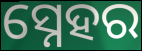
ସ୍ନେହର